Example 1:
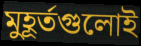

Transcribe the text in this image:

মুহূর্তগুলোই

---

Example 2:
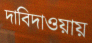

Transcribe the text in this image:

দাবিদাওয়ায়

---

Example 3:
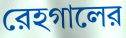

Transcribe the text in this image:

রেহগালের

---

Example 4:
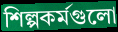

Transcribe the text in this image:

শিল্পকর্মগুলো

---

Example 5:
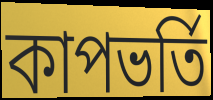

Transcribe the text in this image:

কাপভর্তি